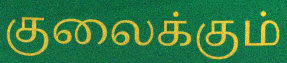
குலைக்கும்